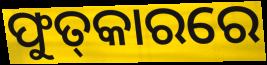
ଫୁତ୍‌କାରରେ